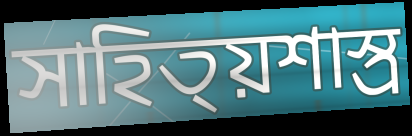
সাহিত্য়শাস্ত্ৰ